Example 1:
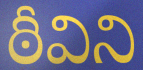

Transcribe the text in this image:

ఠీవిని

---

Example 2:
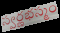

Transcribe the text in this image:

స్వర్ణభస్మం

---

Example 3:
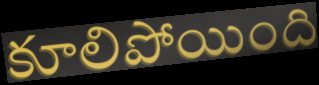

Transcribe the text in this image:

కూలిపోయింది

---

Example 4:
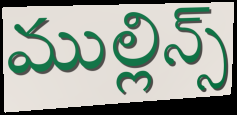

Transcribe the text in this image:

ముల్లిన్స్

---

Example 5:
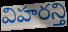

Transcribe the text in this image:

విహరన్తి